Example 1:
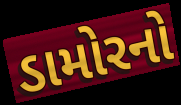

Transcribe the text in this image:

ડામોરનો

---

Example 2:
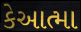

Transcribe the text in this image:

કેઆત્મા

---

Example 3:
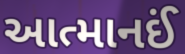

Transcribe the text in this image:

આત્માનઈં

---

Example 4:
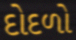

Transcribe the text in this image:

દોદળો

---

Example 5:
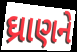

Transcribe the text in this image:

ઘ્રાણને